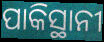
ପାକିସ୍ଥାନୀ